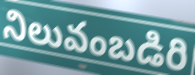
నిలువంబడిరి